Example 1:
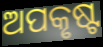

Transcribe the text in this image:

ଅପକୃଷ୍ଟ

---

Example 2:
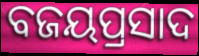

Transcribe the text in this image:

ବଜୟପ୍ରସାଦ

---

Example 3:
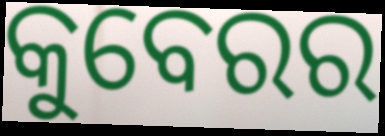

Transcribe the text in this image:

କୁବେରର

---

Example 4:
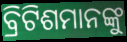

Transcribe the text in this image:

ବ୍ରିଟିଶମାନଙ୍କୁ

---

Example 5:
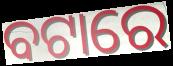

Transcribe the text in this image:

ବଟାରେ